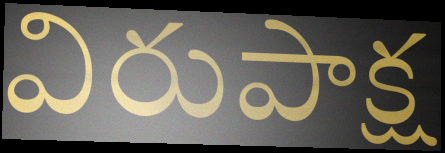
విరుపాక్ష